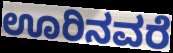
ಊರಿನವರೆ